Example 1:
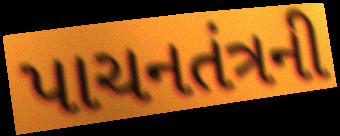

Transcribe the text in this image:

પાચનતંત્રની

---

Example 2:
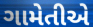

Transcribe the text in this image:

ગામેતીએ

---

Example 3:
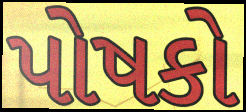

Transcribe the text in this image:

પોષકો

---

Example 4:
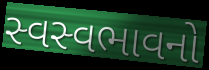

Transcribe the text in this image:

સ્વસ્વભાવનો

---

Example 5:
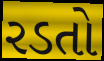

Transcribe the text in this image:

રડતો